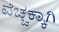
ವೆಚ್ಚಕ್ಕಾಗಿ